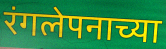
रंगलेपनाच्या